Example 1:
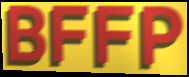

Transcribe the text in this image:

BFFP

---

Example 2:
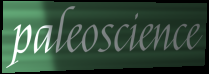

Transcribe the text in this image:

paleoscience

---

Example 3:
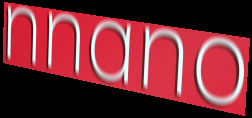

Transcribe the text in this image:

nnano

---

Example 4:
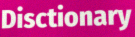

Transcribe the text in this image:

Disctionary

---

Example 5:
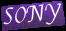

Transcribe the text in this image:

SONY